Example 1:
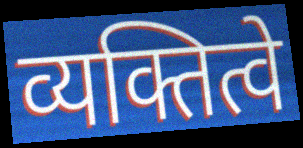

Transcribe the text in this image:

व्यक्तित्वे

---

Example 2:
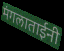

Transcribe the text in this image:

मंगलाताईनी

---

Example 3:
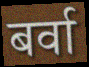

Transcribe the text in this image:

बर्वा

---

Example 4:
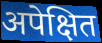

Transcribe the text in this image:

अपेक्षित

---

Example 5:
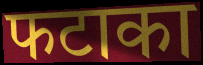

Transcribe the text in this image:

फटाका